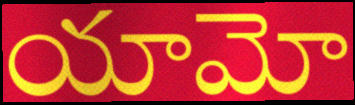
యామో